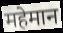
महेमान